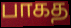
பாகத